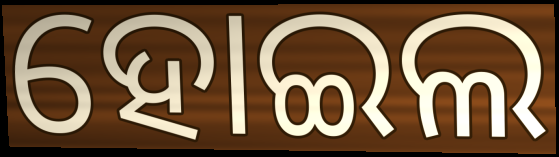
ହୋଇଲ